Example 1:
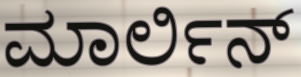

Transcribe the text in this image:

ಮಾರ್ಲಿನ್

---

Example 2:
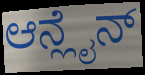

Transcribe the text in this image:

ಆನ್ಲೈನ್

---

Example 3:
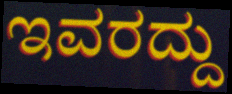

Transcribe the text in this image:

ಇವರದ್ದು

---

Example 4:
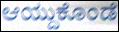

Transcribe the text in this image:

ಆಯ್ದುಕೊಂಡೆ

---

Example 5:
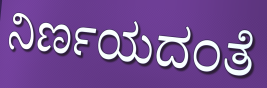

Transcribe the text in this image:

ನಿರ್ಣಯದಂತೆ